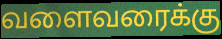
வளைவரைக்கு